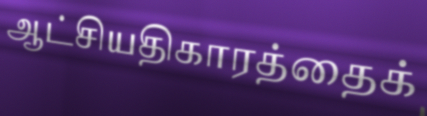
ஆட்சியதிகாரத்தைக்